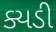
ક્યડી